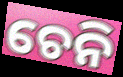
ଚେନି